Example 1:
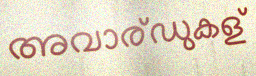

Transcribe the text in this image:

അവാര്ഡുകള്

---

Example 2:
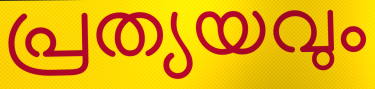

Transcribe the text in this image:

പ്രത്യയവും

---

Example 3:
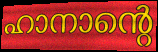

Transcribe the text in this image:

ഹാനാന്റെ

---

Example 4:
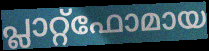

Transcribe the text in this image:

പ്ലാറ്റ്ഫോമായ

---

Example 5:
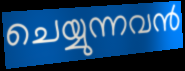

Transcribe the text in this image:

ചെയ്യുന്നവൻ